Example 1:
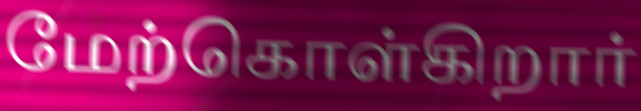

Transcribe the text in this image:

மேற்கொள்கிறார்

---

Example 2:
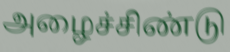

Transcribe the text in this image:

அழைச்சிண்டு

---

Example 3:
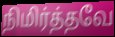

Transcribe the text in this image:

நிமிர்த்தவே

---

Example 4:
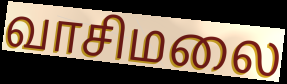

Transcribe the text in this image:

வாசிமலை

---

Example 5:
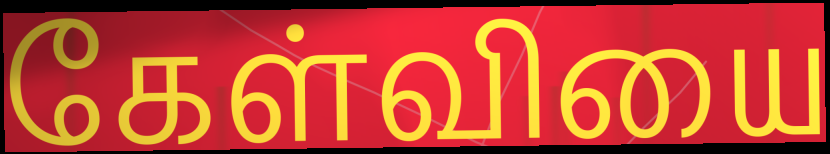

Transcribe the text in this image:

கேள்வியை